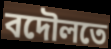
বদৌলতে